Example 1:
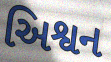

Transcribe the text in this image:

અિશ્વન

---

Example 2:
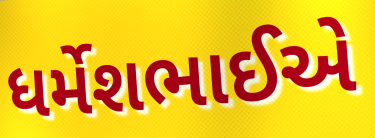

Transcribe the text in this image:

ધર્મેશભાઈએ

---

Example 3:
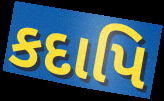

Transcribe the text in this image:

કદાપિ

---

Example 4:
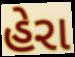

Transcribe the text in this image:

હેરા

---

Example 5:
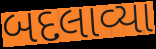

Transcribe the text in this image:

બદલાવ્યા